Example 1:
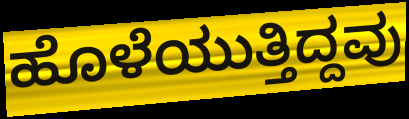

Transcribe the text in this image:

ಹೊಳೆಯುತ್ತಿದ್ದವು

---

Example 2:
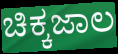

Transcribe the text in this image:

ಚಿಕ್ಕಜಾಲ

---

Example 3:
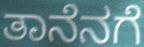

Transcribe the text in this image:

ತಾನೆನಗೆ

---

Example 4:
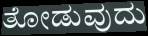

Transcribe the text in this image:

ತೋಡುವುದು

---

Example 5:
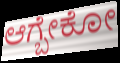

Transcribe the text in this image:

ಆಗ್ಬೇಕೋ